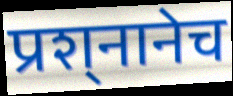
प्रश्नानेच